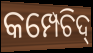
କମ୍ପେଚିଦ୍